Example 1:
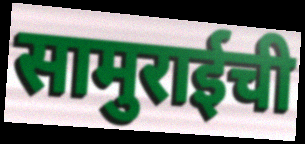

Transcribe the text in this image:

सामुराईची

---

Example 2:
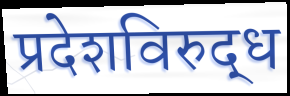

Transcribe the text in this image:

प्रदेशविरुद्ध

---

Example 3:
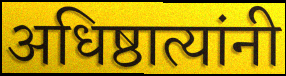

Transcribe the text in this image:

अधिष्ठात्यांनी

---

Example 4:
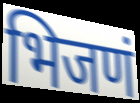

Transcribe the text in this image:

भिजणं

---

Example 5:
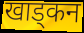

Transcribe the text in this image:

खाड्कन